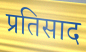
प्रतिसाद